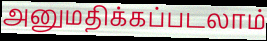
அனுமதிக்கப்படலாம்